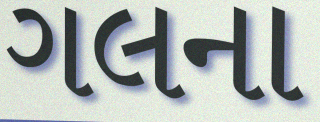
ગલના